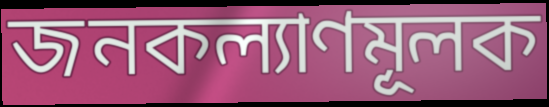
জনকল্যাণমূলক